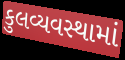
કુલવ્યવસ્થામાં